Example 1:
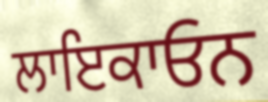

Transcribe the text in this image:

ਲਾਇਕਾਓਨ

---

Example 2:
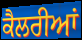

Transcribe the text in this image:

ਕੈਲਰੀਆਂ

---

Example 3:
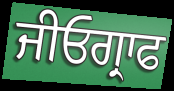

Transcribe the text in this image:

ਜੀਓਗ੍ਰਾਫ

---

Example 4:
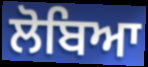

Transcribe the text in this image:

ਲੋਬਿਆ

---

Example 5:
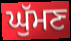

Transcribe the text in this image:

ਘੁੱਮਣ